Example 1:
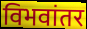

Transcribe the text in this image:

विभवांतर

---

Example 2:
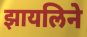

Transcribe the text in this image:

झायलिने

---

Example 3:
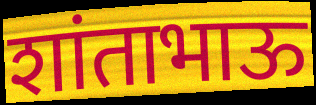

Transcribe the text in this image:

शांताभाऊ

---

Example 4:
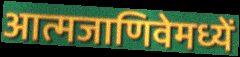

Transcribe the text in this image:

आत्मजाणिवेमध्यें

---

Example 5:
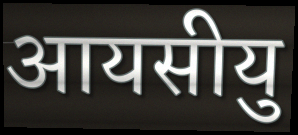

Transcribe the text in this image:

आयसीयु